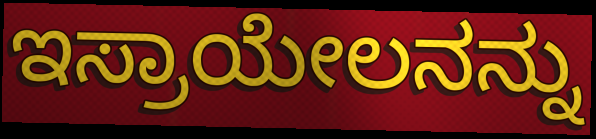
ಇಸ್ರಾಯೇಲನನ್ನು